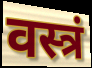
वस्त्रं